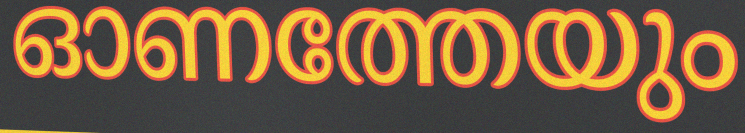
ഓണത്തേയും